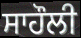
ਸਾਹੌਲੀ